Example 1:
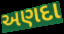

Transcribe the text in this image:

અણદા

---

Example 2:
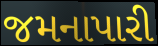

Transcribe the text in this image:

જમનાપારી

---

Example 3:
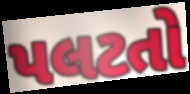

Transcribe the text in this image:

પલટતો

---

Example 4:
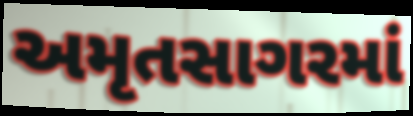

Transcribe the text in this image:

અમૃતસાગરમાં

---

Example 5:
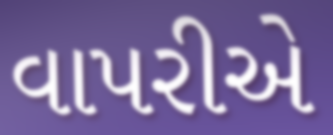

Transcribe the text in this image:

વાપરીએ